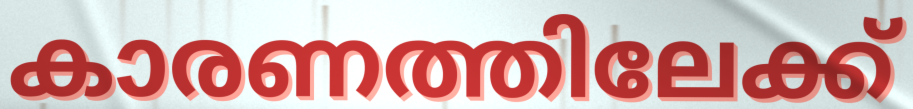
കാരണത്തിലേക്ക്